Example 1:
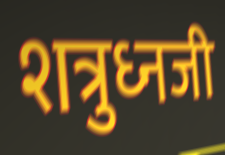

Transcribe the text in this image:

शत्रुध्नजी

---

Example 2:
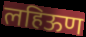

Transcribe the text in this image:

लहिऊण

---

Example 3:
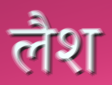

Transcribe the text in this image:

लैश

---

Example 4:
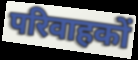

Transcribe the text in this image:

परिवाहकों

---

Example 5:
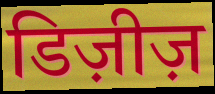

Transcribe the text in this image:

डिज़ीज़